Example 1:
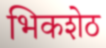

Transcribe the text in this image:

भिकशेठ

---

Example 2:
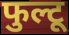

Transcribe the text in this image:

फुल्टू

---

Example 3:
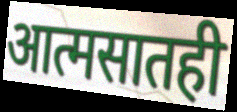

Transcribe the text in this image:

आत्मसातही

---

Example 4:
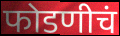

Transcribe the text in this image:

फोडणीचं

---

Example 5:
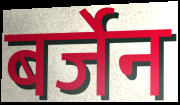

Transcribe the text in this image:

बर्जेन